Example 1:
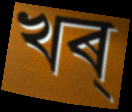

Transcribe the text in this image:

খৰ্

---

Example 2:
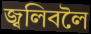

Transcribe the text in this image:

জ্বলিবলৈ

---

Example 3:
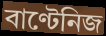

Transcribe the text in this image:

বাণ্টেনিজ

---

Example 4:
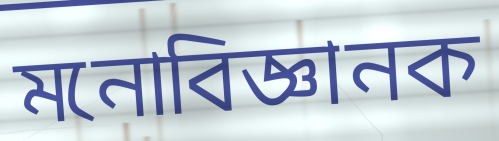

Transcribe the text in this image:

মনোবিজ্ঞানক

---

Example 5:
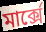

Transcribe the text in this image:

মাৰ্ক্সে